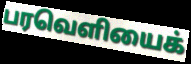
பரவெளியைக்